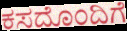
ಕಸದೊಂದಿಗೆ